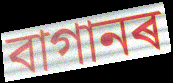
বাগানৰ